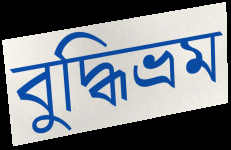
বুদ্ধিভ্রম